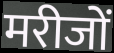
मरीजों